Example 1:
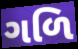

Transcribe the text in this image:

ગળિ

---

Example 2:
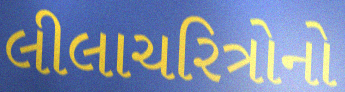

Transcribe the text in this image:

લીલાચરિત્રોનો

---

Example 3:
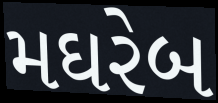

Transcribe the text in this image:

મઘરેબ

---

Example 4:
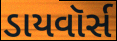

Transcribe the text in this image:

ડાયવૉર્સ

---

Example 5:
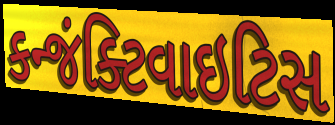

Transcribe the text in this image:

કન્જંક્ટિવાઇટિસ